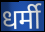
धर्मी